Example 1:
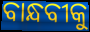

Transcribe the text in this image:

ବାନ୍ଧବୀକୁ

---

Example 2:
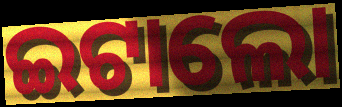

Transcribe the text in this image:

ଇଟାଲୋ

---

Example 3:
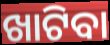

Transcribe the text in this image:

ଖାଟିବା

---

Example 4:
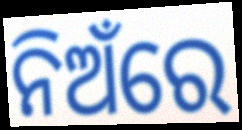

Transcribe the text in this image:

ନିଅଁରେ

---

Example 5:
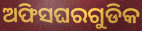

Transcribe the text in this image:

ଅଫିସଘରଗୁଡିକ